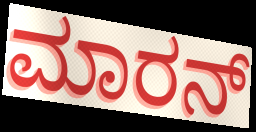
ಮಾರನ್